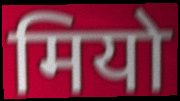
मियो